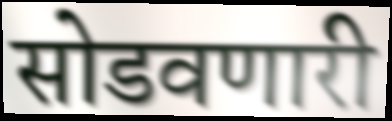
सोडवणारी